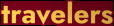
travelers